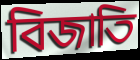
বিজাতি